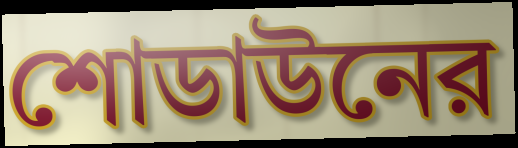
শোডাউনের